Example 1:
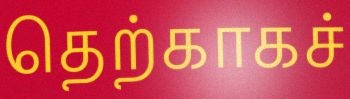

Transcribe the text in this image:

தெற்காகச்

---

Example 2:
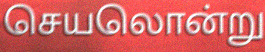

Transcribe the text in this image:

செயலொன்று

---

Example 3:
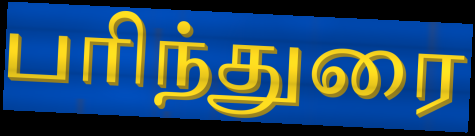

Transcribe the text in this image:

பரிந்துரை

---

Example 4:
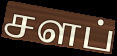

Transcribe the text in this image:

சளப்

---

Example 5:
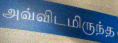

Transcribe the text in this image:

அவ்விடமிருந்த